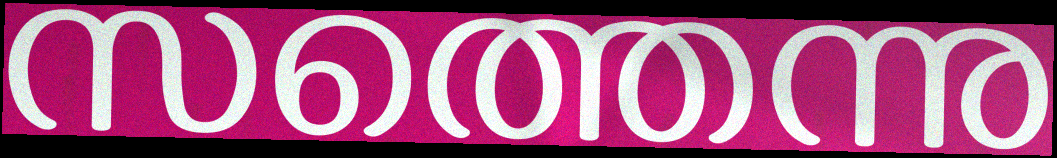
സത്തെന്നു